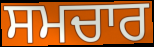
ਸਮਚਾਰ